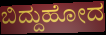
ಬಿದ್ದುಹೋದ